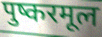
पुष्करमूल